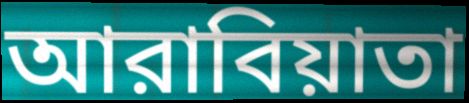
আরাবিয়াতা